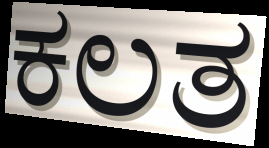
ಕಲತ